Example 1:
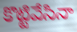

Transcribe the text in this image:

కొట్టివేసినా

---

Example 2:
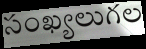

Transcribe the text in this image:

సంఖ్యలుగల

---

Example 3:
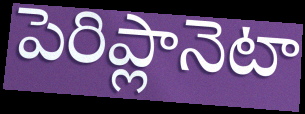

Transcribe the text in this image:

పెరిప్లానెటా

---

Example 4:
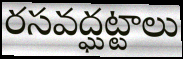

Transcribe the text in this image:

రసవద్ఘట్టాలు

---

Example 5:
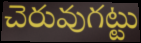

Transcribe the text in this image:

చెరువుగట్టు